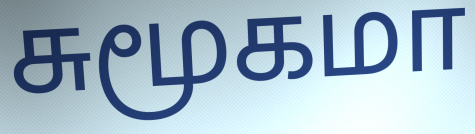
சுமூகமா